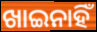
ଖାଇନାହିଁ